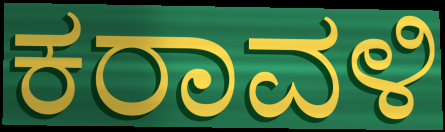
ಕರಾವಳಿ